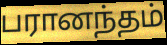
பரானந்தம்